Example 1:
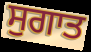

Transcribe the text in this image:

ਸੁਗਾਤ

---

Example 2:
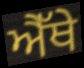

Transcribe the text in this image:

ਐੱਥੇ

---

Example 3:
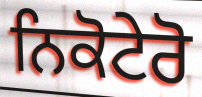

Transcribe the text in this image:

ਨਿਕੋਟੇਰੋ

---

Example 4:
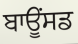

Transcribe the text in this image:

ਬਾਊਂਸਡ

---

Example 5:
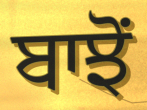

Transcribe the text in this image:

ਬਾਝੋਂ